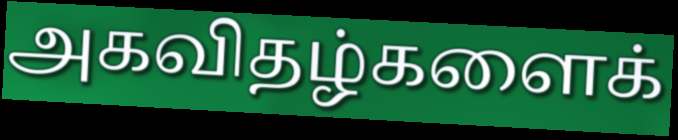
அகவிதழ்களைக்